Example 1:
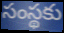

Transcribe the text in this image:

సంస్థకు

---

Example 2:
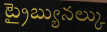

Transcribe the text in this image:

ట్రైబ్యునల్కు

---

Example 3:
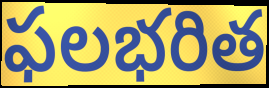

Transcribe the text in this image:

ఫలభరిత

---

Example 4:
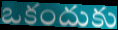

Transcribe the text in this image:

ఒకందుకు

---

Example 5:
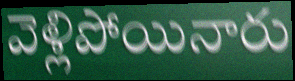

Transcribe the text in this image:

వెళ్లిపోయినారు